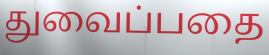
துவைப்பதை